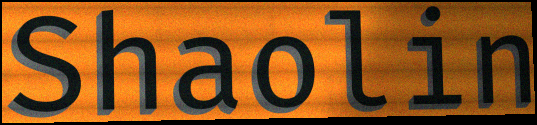
Shaolin